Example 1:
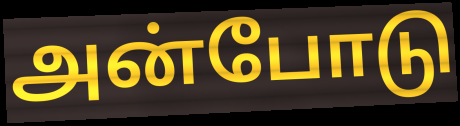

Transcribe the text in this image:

அன்போடு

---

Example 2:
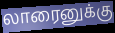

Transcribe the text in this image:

லாரைனுக்கு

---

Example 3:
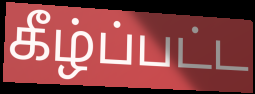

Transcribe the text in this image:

கீழ்ப்பட்ட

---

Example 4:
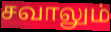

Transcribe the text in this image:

சவாலும்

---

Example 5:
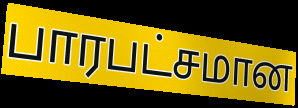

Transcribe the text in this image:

பாரபட்சமான